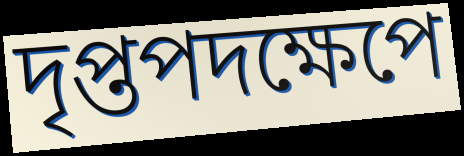
দৃপ্তপদক্ষেপে